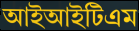
আইআইটিএম